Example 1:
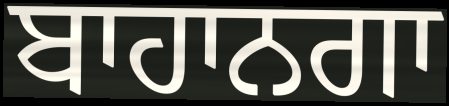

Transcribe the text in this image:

ਬਾਹਾਨਗਾ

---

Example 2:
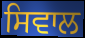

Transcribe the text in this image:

ਸਿਵਾਲ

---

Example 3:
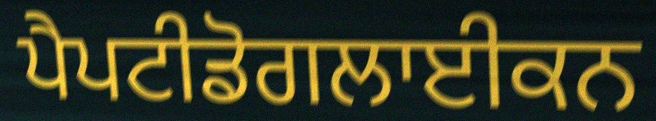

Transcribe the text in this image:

ਪੈਪਟੀਡੋਗਲਾਈਕਨ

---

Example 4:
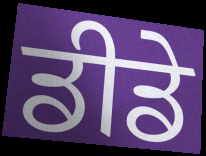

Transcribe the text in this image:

ਡੀਡੇ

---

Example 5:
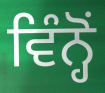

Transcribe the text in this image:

ਵਿੰਨ੍ਹੋਂ